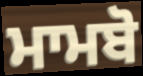
ਮਾਮਬੋ